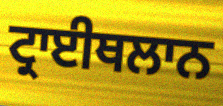
ਟ੍ਰਾਈਥਲਾਨ